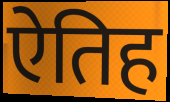
ऐतिह